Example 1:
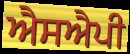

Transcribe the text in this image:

ਐਸਐਪੀ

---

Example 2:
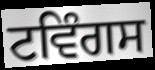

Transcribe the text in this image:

ਟਵਿੰਗਸ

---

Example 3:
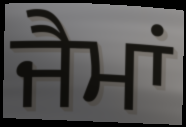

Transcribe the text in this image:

ਜੈਮਾਂ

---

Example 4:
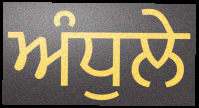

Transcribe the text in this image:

ਅੰਧੁਲੇ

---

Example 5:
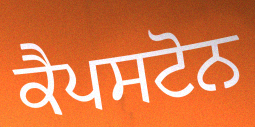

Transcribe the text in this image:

ਕੈਪਸਟੋਨ